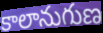
కాలానుగుణ